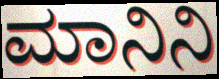
ಮಾನಿನಿ